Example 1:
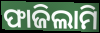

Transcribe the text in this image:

ଫାଜିଲାମି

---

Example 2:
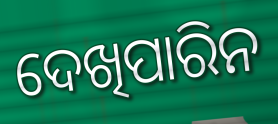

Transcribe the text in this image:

ଦେଖିପାରିନ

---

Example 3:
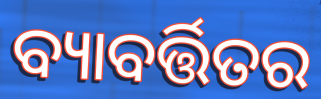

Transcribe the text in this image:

ବ୍ୟାବର୍ତ୍ତିତର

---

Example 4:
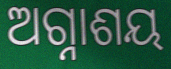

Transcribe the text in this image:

ଅଗ୍ନାଶୟ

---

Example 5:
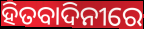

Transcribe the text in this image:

ହିତବାଦିନୀରେ